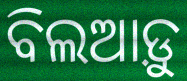
ବିଲଆଡ଼ୁ